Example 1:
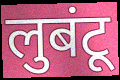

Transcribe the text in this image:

लुबंटू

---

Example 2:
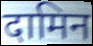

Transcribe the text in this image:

दामिन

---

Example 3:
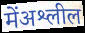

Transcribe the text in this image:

मेंअश्लील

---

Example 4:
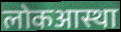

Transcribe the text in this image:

लोकआस्था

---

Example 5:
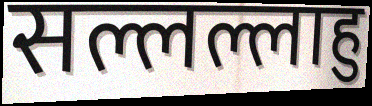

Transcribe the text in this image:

सल्लल्लाहु